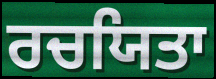
ਰਚਯਿਤਾ